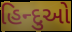
હિન્દુઓ